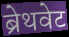
ब्रेथवेट